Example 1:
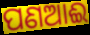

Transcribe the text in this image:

ପଣଆଈ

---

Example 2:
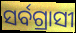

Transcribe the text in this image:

ସର୍ବଗ୍ରାସୀ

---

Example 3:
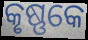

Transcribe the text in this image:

କୃଷ୍ଣକେ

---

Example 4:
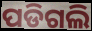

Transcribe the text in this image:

ପଡିଗଲି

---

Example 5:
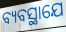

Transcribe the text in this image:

ବ୍ୟବସ୍ଥାଯେ